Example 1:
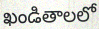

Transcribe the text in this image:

ఖండితాలలో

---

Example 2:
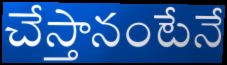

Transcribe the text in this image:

చేస్తానంటేనే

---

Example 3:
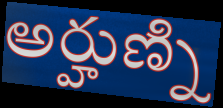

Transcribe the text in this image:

అర్హుణ్ని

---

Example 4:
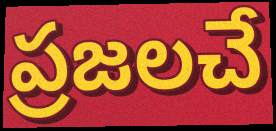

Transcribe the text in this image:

ప్రజలచే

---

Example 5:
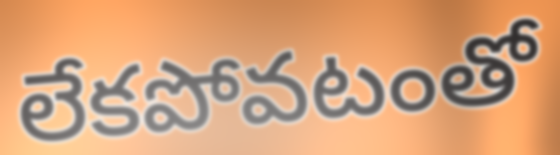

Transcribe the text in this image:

లేకపోవటంతో